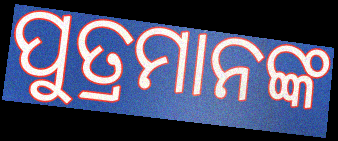
ପୁତ୍ରମାନଙ୍କ